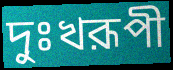
দুঃখরূপী